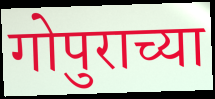
गोपुराच्या